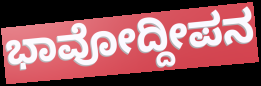
ಭಾವೋದ್ದೀಪನ